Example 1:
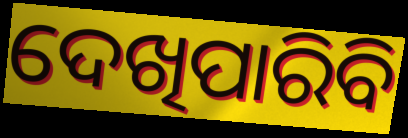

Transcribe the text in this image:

ଦେଖିପାରିବି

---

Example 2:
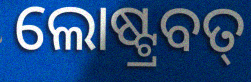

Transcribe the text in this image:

ଲୋଷ୍ଟ୍ରବତ୍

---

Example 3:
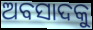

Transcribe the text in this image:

ଅବସାଦକୁ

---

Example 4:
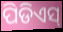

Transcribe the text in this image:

ପିଡିଏସ୍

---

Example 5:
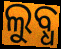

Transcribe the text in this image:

ଲୁବ୍ଧ